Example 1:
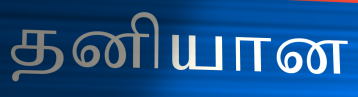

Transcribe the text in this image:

தனியான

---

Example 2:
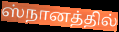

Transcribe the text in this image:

ஸ்நானத்தில்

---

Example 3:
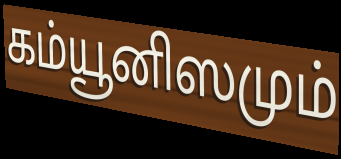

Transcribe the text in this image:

கம்யூனிஸமும்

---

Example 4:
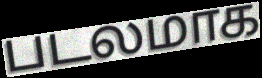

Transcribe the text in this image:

படலமாக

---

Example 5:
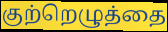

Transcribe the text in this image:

குற்றெழுத்தை